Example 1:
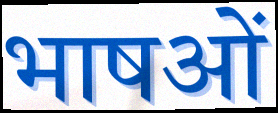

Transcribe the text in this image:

भाषओं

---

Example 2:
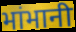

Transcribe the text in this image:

भांभानी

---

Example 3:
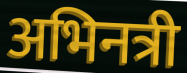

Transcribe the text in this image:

अभिनत्री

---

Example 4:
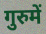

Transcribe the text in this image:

गुरुमें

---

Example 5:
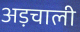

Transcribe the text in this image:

अड़चाली